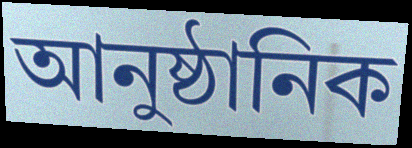
আনুষ্ঠানিক